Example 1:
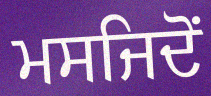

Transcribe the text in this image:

ਮਸਜਿਦੋਂ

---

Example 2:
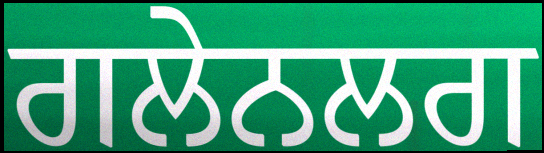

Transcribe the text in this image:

ਗਲੇਨਲਗ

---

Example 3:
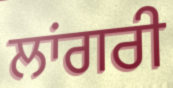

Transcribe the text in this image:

ਲਾਂਗਰੀ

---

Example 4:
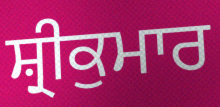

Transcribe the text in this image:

ਸ਼੍ਰੀਕੁਮਾਰ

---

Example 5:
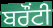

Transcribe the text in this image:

ਬਰੌਂਟੀ